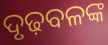
ଦୃଢ଼ବଳଙ୍କ